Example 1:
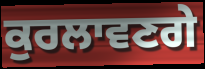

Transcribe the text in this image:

ਕੁਰਲਾਵਣਗੇ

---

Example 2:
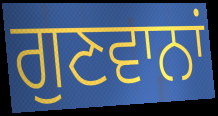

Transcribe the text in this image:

ਗੁਣਵਾਨਾਂ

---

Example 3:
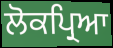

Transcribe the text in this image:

ਲੋਕਪ੍ਰਿਆ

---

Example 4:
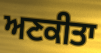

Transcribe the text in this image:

ਅਣਕੀਤਾ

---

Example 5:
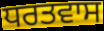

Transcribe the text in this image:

ਧਰਤਵਾਸ